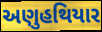
અણુહથિયાર